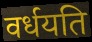
वर्धयति